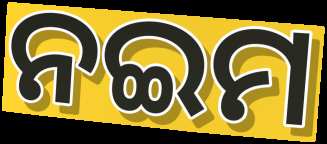
ନଇମ